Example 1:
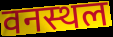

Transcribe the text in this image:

वनस्थल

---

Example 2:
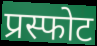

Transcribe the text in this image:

प्रस्फोट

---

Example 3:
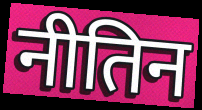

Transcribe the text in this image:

नीतिन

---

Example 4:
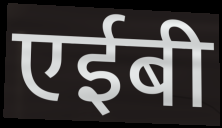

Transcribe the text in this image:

एईबी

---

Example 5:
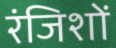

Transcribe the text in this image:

रंजिशों